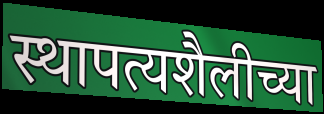
स्थापत्यशैलीच्या